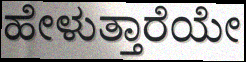
ಹೇಳುತ್ತಾರೆಯೇ